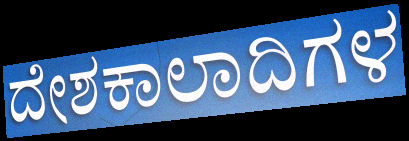
ದೇಶಕಾಲಾದಿಗಳ